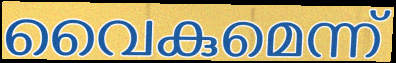
വൈകുമെന്ന്